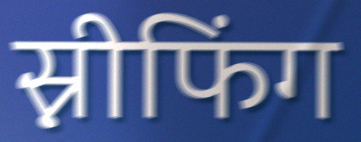
स्नीफिंग